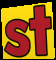
st